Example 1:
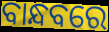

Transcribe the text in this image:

ବାନ୍ଧବରେ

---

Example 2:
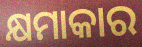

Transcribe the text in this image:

କ୍ଷମାକାର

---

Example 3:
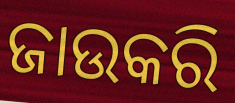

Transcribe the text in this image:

ଜାଉକରି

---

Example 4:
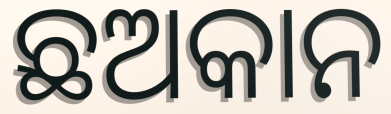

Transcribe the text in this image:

ଛଅକାନ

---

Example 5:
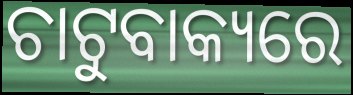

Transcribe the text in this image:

ଚାଟୁବାକ୍ୟରେ